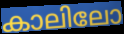
കാലിലോ